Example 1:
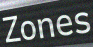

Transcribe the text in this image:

Zones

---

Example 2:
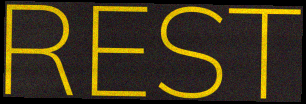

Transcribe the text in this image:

REST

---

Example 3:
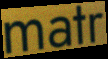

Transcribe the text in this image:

matr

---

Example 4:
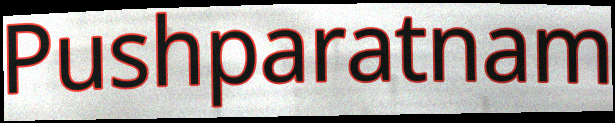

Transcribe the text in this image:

Pushparatnam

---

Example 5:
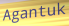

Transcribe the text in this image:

Agantuk